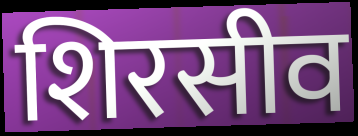
शिरसीव